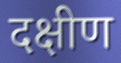
दक्षीण